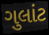
ગુલાંટ